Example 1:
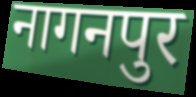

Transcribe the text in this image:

नागनपुर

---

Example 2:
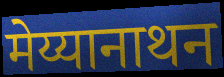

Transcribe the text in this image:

मेय्यानाथन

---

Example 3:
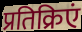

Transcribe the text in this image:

प्रतिक्रिएं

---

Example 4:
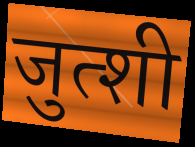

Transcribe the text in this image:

जुत्शी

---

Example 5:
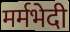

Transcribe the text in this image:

मर्मभेदी